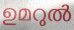
ഉമറുൽ